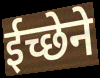
ईच्छेने